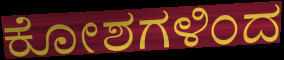
ಕೋಶಗಳಿಂದ